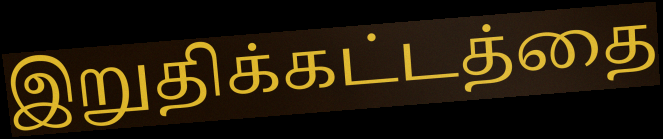
இறுதிக்கட்டத்தை